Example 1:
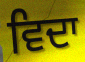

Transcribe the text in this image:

ਵਿਦਾ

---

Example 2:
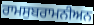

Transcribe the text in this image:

ਰਾਮਸੁਬਰਾਮਨੀਅਨ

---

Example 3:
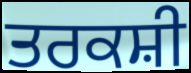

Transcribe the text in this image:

ਤਰਕਸ਼ੀ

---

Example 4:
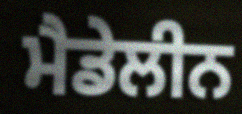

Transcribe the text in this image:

ਮੈਡੇਲੀਨ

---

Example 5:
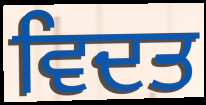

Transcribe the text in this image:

ਵਿਦਤ